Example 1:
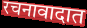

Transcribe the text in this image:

रचनावादात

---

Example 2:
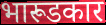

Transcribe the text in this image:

भारूडकार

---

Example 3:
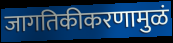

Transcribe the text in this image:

जागतिकीकरणामुळं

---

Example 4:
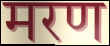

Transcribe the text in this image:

मरण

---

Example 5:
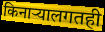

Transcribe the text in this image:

किनाऱ्यालगतही